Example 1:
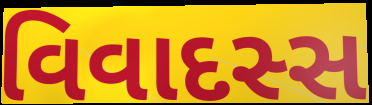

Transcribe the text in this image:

વિવાદસ્સ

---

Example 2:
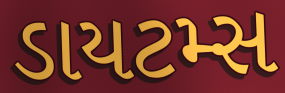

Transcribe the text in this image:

ડાયટમ્સ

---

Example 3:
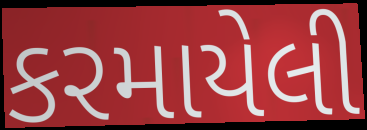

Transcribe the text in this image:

કરમાયેલી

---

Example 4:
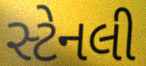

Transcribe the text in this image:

સ્ટેનલી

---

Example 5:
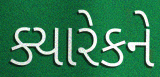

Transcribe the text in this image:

ક્યારેકને